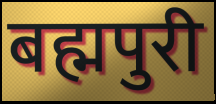
बह्मपुरी